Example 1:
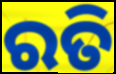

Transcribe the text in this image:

ରତି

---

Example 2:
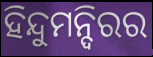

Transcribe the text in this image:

ହିନ୍ଦୁମନ୍ଦିରର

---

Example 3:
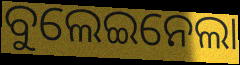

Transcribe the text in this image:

ବୁଲେଇନେଲା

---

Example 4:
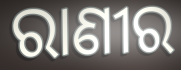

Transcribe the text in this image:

ରାଣୀର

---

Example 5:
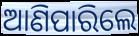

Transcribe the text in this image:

ଆଣିପାରିଲେ